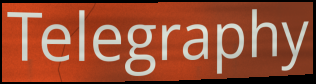
Telegraphy